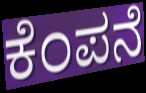
ಕೆಂಪನೆ